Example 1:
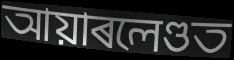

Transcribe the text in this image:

আয়াৰলেণ্ডত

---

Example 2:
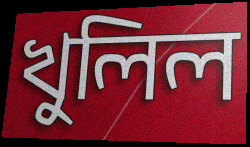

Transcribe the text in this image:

খুলিল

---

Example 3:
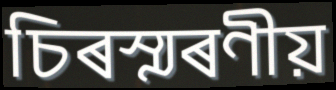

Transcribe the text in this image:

চিৰস্মৰণীয়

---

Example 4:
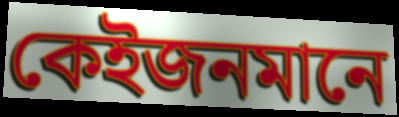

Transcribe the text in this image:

কেইজনমানে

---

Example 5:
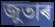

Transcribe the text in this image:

জুতাৰ